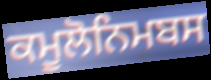
ਕਮੂਲੋਨਿਮਬਸ